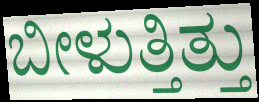
ಬೀಳುತ್ತಿತ್ತು